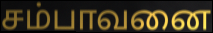
சம்பாவனை